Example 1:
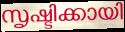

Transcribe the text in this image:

സൃഷ്ടിക്കായി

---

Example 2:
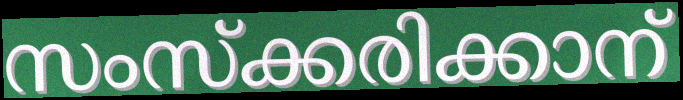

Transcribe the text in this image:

സംസ്ക്കരിക്കാന്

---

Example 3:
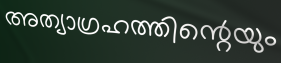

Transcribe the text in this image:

അത്യാഗ്രഹത്തിന്റെയും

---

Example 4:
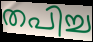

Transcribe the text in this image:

തപിച്ച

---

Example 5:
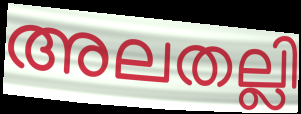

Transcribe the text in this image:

അലതല്ലി